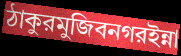
ঠাকুরমুজিবনগরইন্না